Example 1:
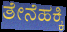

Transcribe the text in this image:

ತೇನೆಹಕ್ಕಿ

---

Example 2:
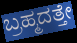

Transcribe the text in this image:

ಬ್ರಹ್ಮದತ್ತೇ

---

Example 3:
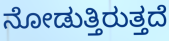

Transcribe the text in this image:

ನೋಡುತ್ತಿರುತ್ತದೆ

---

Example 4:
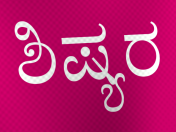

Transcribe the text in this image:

ಶಿಷ್ಯರ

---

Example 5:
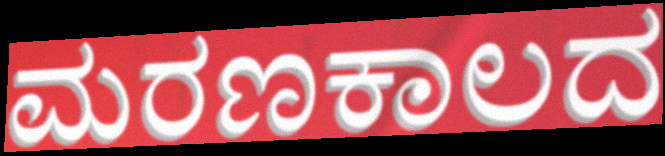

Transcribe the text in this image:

ಮರಣಕಾಲದ